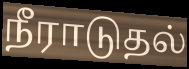
நீராடுதல்